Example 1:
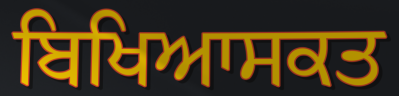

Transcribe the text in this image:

ਬਿਖਿਆਸਕਤ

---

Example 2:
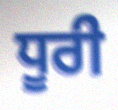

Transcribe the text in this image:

ਧੂਰੀ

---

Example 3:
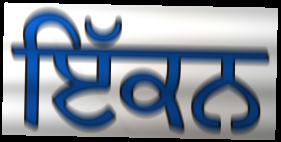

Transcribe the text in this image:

ਇੱਕਨ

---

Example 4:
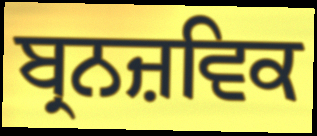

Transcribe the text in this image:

ਬ੍ਰਨਜ਼ਵਿਕ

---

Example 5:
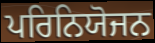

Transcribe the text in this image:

ਪਰਿਨਿਯੋਜਨ